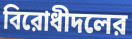
বিরোধীদলের